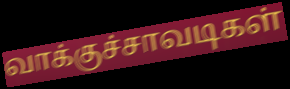
வாக்குச்சாவடிகள்